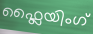
ഫ്ലൈയിംഗ്